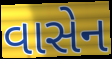
વાસેન